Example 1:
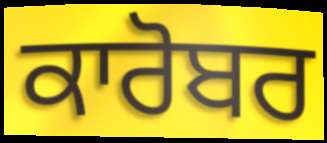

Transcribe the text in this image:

ਕਾਰੋਬਰ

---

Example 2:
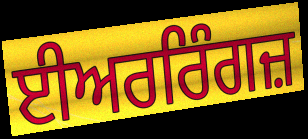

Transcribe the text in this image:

ਈਅਰਰਿੰਗਜ਼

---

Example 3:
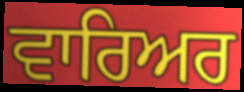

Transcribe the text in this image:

ਵਾਰਿਅਰ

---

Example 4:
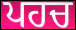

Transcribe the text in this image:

ਪਹਚ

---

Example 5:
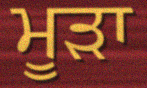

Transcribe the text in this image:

ਮੂੜਾ